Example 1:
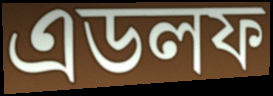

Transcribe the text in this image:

এডলফ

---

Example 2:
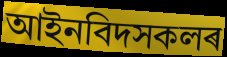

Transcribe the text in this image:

আইনবিদসকলৰ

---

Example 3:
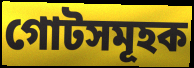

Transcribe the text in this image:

গোটসমূহক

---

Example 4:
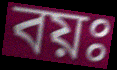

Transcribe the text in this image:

বয়ঃ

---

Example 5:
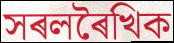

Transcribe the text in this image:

সৰলৰৈখিক